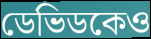
ডেভিডকেও